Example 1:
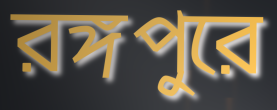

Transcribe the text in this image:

রঙ্গপুরে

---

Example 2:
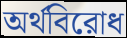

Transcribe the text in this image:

অর্থবিরোধ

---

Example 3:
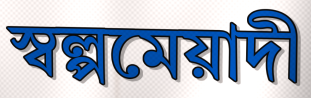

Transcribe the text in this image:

স্বল্পমেয়াদী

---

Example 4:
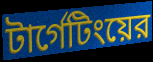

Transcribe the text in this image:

টার্গেটিংয়ের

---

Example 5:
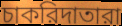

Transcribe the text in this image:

চাকরিদাতারা